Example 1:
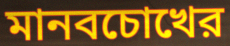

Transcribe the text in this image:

মানবচোখের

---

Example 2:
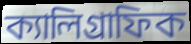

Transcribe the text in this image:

ক্যালিগ্রাফিক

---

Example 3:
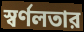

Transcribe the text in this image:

স্বর্ণলতার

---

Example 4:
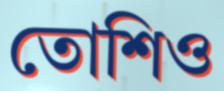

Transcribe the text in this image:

তোশিও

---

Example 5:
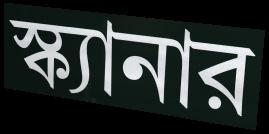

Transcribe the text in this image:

স্ক্যানার